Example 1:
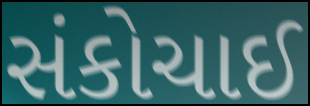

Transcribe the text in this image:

સંકોચાઈ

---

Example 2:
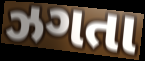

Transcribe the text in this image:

ઝગતા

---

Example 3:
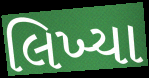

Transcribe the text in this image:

લિખ્યા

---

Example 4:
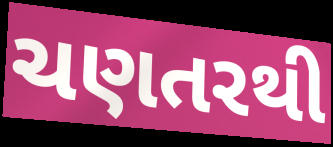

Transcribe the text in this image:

ચણતરથી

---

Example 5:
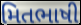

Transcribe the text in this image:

મિતભાષી